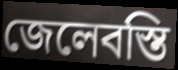
জেলেবস্তি